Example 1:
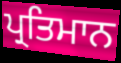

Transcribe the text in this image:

ਪ੍ਰਤਿਮਾਨ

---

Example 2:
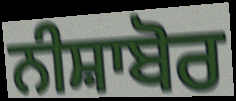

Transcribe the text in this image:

ਨੀਸ਼ਾਬੋਰ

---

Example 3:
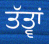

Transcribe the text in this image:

ਤੱਤ੍ਵਾਂ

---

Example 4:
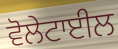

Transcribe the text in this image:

ਵੋਲੇਟਾਈਲ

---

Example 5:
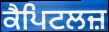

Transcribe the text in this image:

ਕੈਪਿਟਲਜ਼